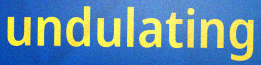
undulating